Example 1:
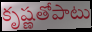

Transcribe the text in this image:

కృష్ణతోపాటు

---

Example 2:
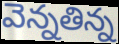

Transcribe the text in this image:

వెన్నతిన్న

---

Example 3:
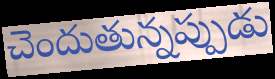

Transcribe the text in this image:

చెందుతున్నప్పుడు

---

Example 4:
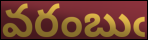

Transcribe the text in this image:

వరంబుఁ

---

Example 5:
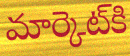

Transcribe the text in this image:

మార్కెట్‌కి